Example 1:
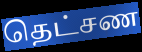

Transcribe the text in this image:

தெட்சண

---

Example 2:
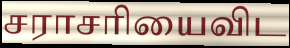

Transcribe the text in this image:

சராசரியைவிட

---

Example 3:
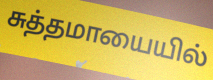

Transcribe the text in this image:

சுத்தமாயையில்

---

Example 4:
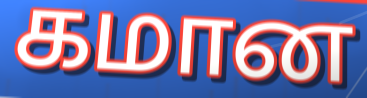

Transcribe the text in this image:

கமான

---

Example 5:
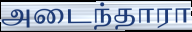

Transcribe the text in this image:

அடைந்தாரா